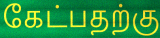
கேட்பதற்கு